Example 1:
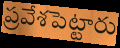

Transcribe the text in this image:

ప్రవేశపెట్టారు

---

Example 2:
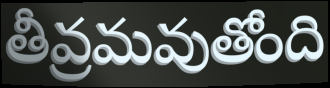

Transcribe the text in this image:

తీవ్రమవుతోంది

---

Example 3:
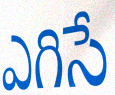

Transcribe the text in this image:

ఎగిసే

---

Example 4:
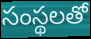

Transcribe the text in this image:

సంస్థలతో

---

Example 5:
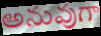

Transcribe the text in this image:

అనువుగా